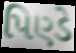
પિણ્ડે